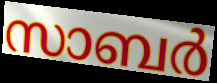
സാബർ